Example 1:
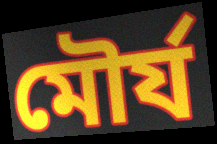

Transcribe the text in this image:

মৌৰ্য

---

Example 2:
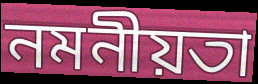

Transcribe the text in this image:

নমনীয়তা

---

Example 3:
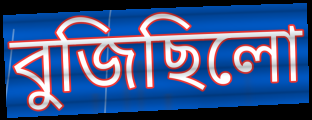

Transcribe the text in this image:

বুজিছিলো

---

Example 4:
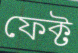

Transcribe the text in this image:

ফেক্ট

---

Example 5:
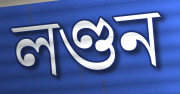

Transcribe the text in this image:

লণ্ডন